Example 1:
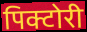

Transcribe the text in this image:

पिक्टोरी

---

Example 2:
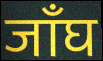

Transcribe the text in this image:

जाँघ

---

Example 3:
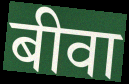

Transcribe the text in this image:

बीवा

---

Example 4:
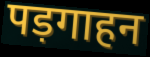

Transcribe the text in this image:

पड़गाहन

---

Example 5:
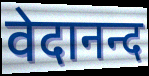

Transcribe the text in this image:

वेदानन्द